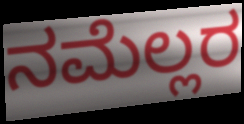
ನಮೆಲ್ಲರ